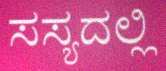
ಸಸ್ಯದಲ್ಲಿ